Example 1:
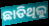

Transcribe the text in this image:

ଛାଡିଥିଲୁ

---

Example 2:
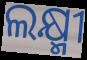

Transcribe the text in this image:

ଲକ୍ଷ୍ମୀ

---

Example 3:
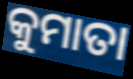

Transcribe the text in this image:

କୁମାତା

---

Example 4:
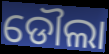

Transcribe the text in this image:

ଡୌଲା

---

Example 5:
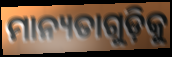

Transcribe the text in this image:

ମାନ୍ୟତାଗୁଡ଼ିକୁ